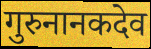
गुरुनानकदेव